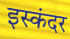
इस्कंदर